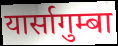
यार्सागुम्बा